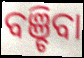
ବଞ୍ଚିବା